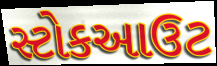
સ્ટોકઆઉટ